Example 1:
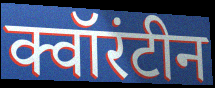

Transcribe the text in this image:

क्वॉरंटीन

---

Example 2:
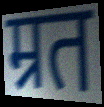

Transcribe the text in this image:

म्रत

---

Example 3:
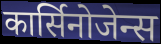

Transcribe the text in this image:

कार्सिनोजेन्स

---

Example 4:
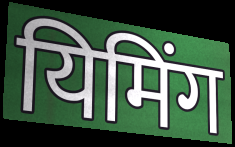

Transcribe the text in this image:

यिमिंग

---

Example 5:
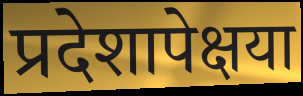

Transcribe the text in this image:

प्रदेशापेक्षया